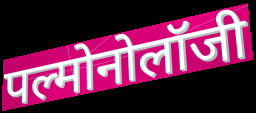
पल्मोनोलॉजी